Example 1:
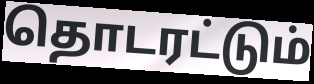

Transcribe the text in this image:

தொடரட்டும்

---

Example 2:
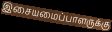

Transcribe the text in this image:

இசையமைப்பாளருக்கு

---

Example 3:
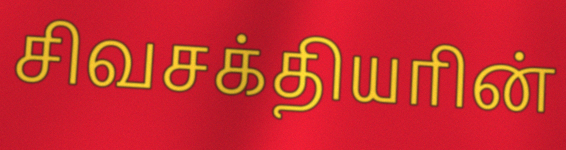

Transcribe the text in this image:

சிவசக்தியரின்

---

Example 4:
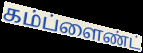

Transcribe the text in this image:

கம்ப்ளைண்ட்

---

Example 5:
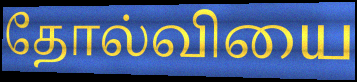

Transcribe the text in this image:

தோல்வியை